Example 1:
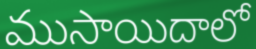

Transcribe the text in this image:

ముసాయిదాలో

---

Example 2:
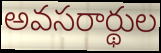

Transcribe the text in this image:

అవసరార్థుల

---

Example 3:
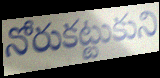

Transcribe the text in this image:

నోరుకట్టుకుని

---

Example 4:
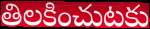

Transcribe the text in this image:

తిలకించుటకు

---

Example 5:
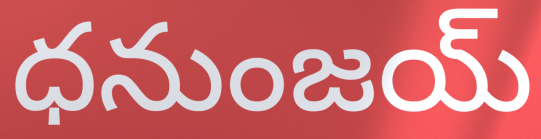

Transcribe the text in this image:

ధనుంజయ్